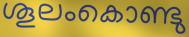
ശൂലംകൊണ്ടു